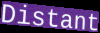
Distant